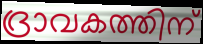
ദ്രാവകത്തിന്